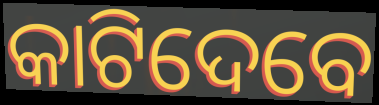
କାଟିଦେବେ